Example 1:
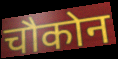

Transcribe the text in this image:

चौकोन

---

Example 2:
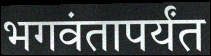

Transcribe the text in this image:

भगवंतापर्यंत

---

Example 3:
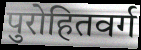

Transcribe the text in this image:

पुरोहितवर्ग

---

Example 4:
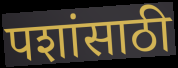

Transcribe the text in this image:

पशांसाठी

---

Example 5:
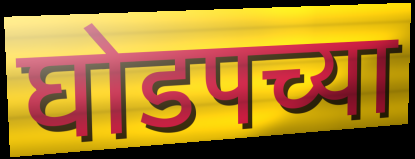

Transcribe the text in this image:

घोडपच्या